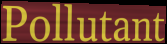
Pollutant